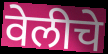
वेलीचे